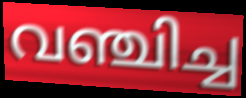
വഞ്ചിച്ച